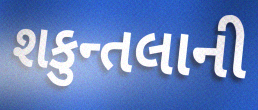
શકુન્તલાની